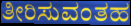
ತೀರಿಸುವಂತಹ